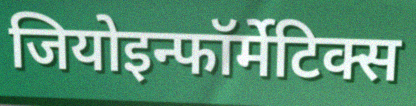
जियोइन्फॉर्मेटिक्स